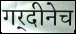
गर्दीनेच